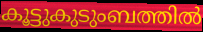
കൂട്ടുകുടുംബത്തിൽ